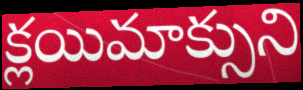
క్లయిమాక్సుని